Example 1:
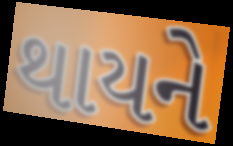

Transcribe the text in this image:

થાયને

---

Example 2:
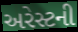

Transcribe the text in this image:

અરેસ્ટની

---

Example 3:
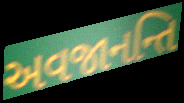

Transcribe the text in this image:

અવજાનન્તિ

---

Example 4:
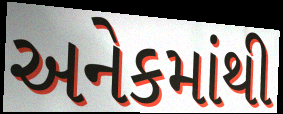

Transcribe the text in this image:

અનેકમાંથી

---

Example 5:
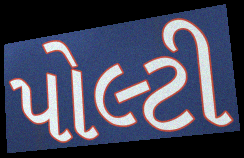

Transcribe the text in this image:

પોલ્ટી